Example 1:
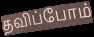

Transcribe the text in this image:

தவிப்போம்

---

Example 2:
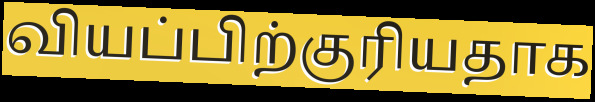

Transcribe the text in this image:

வியப்பிற்குரியதாக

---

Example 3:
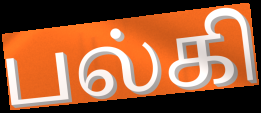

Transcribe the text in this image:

பல்கி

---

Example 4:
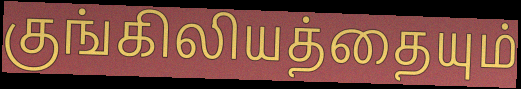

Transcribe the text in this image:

குங்கிலியத்தையும்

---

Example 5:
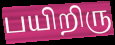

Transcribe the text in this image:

பயிறிரு